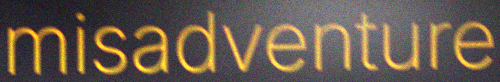
misadventure